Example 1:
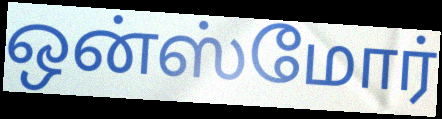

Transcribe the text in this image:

ஒன்ஸ்மோர்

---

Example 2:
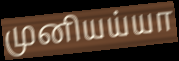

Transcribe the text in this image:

முனியய்யா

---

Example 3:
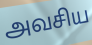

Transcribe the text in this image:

அவசிய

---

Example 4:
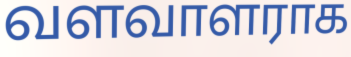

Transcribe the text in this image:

வளவாளராக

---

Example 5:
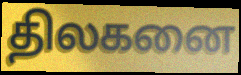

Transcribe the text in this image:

திலகனை